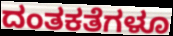
ದಂತಕತೆಗಳೂ